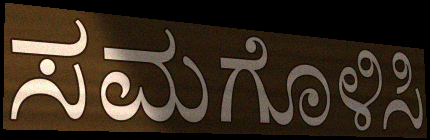
ಸಮಗೊಳಿಸಿ